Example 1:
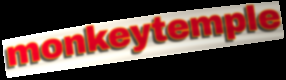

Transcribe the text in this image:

monkeytemple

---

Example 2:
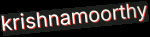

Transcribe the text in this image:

krishnamoorthy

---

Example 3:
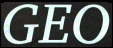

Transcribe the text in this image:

GEO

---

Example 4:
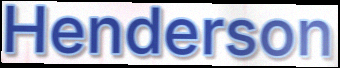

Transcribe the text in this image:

Henderson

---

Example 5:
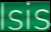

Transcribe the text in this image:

Isis